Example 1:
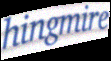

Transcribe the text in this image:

hingmire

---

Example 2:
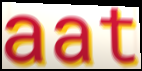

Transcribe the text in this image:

aat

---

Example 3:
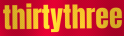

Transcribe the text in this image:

thirtythree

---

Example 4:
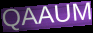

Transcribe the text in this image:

QAAUM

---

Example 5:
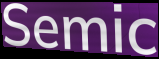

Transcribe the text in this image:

Semic